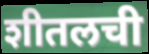
शीतलची